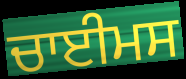
ਚਾਈਮਸ